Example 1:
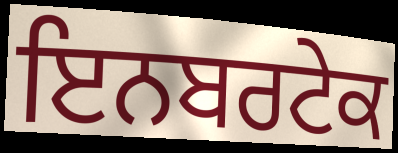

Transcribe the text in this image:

ਇਨਬਰਟੇਕ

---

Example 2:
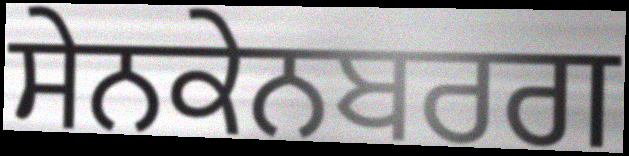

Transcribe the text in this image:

ਸੇਨਕੇਨਬਰਗ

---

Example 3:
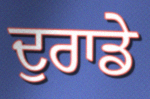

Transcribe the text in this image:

ਦੁਰਾਡੇ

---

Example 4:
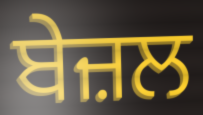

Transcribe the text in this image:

ਬੇਜ਼ਲ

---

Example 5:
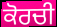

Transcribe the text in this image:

ਕੋਰਚੀ